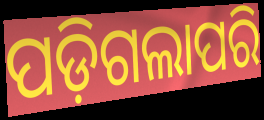
ପଡ଼ିଗଲାପରି